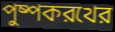
পুষ্পকরথের